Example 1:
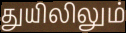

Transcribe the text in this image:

துயிலிலும்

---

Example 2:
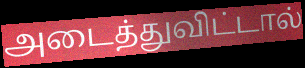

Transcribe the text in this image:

அடைத்துவிட்டால்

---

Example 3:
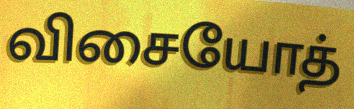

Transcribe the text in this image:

விசையோத்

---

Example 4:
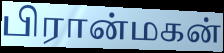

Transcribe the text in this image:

பிரான்மகன்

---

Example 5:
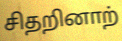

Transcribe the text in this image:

சிதறினாற்